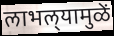
लाभल्यामुळें